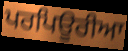
ਪਰਪਿਊਰੀਆ